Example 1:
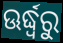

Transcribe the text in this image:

ଊର୍ଦ୍ଧ୍ଵରୁ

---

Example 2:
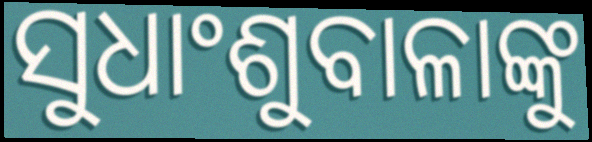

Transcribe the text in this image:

ସୁଧାଂଶୁବାଳାଙ୍କୁ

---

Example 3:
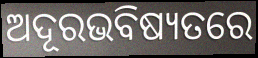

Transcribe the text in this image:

ଅଦୂରଭବିଷ୍ୟତରେ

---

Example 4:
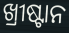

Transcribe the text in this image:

ଖ୍ରୀଷ୍ଟାନ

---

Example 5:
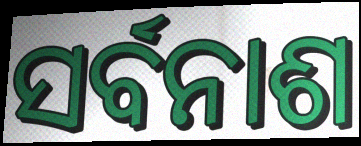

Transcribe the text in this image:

ସର୍ବନାଶ